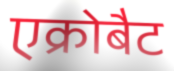
एक्रोबैट